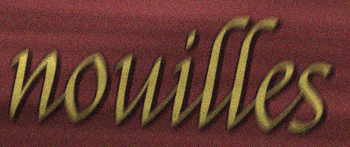
nouilles